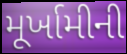
મૂર્ખામીની